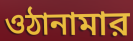
ওঠানামার